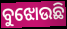
ବୁଝୋଉଛି